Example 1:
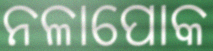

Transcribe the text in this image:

ନଳାପୋକ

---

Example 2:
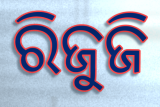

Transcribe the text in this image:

ରିଜୁଜି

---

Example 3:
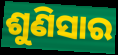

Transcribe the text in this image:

ଶୁଣିସାର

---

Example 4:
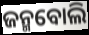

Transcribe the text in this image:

ଜନ୍ମବୋଲି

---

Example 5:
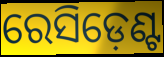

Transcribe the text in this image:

ରେସିଡ଼େଣ୍ଟ